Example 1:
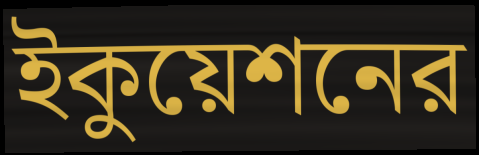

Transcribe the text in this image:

ইকুয়েশনের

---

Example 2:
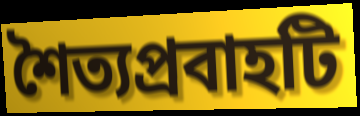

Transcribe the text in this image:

শৈত্যপ্রবাহটি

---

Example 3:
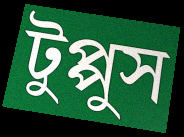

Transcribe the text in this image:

টুপ্পুস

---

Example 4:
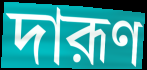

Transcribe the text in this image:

দারূণ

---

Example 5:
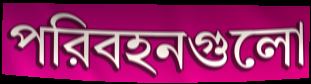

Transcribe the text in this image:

পরিবহনগুলো